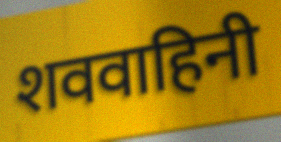
शववाहिनी